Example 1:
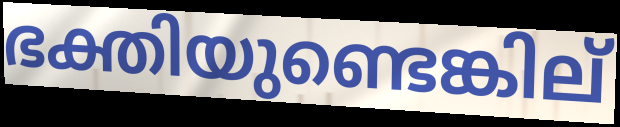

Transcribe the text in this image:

ഭക്തിയുണ്ടെങ്കില്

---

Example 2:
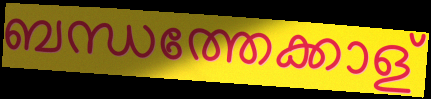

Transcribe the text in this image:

ബന്ധത്തേക്കാള്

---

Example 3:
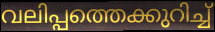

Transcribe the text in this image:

വലിപ്പത്തെക്കുറിച്ച്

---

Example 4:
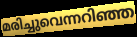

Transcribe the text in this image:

മരിച്ചുവെന്നറിഞ്ഞ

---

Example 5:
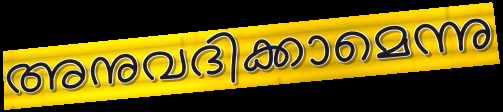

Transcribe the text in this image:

അനുവദിക്കാമെന്നു